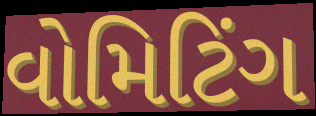
વોમિટિંગ